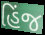
હિંજ